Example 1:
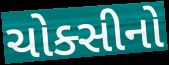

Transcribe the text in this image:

ચોક્સીનો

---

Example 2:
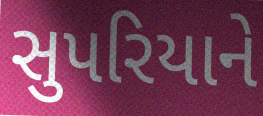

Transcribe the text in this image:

સુપરિયાને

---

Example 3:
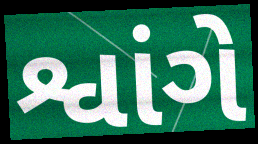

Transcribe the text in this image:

શ્વાંગે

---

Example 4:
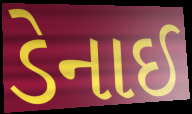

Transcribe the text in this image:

ડેનાઈ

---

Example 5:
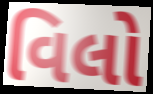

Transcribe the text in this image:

વિલો